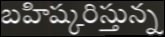
బహిష్కరిస్తున్న